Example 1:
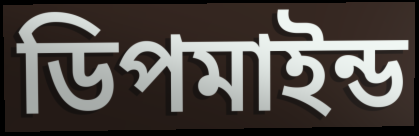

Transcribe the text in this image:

ডিপমাইন্ড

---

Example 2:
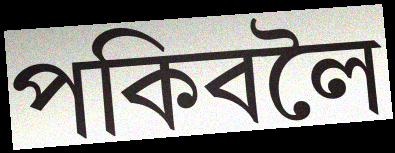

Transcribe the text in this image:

পকিবলৈ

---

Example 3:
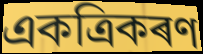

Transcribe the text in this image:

একত্ৰিকৰণ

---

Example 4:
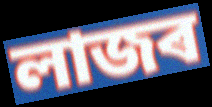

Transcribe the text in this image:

লাজৰ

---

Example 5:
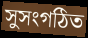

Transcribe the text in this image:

সুসংগঠিত